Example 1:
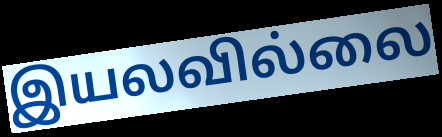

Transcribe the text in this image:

இயலவில்லை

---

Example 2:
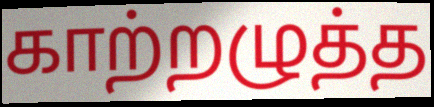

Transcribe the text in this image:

காற்றழுத்த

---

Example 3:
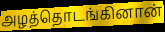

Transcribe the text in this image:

அழத்தொடங்கினான்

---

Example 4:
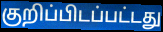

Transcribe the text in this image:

குறிப்பிடப்பட்டது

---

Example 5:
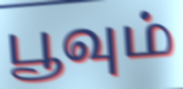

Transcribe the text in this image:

பூவும்